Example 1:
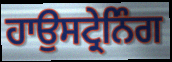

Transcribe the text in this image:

ਹਾਉਸਟ੍ਰੇਨਿੰਗ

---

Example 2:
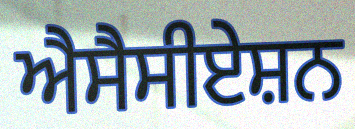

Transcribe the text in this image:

ਐਸੈਸੀਏਸ਼ਨ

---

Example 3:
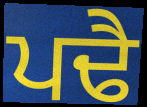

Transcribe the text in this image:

ਪਢੈ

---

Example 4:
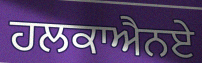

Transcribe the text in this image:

ਹਲਕਾਐਨਏ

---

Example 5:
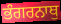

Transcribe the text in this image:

ਭੰਗਰਨਾਥੁ